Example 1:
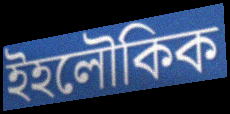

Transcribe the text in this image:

ইহলৌকিক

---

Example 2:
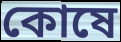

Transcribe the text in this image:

কোষে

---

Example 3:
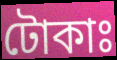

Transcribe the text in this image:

টোকাঃ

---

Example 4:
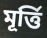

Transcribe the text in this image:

মূৰ্ত্তি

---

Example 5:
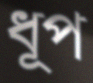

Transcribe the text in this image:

ধূপ